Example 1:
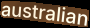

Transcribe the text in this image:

australian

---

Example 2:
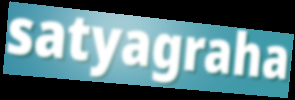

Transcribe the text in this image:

satyagraha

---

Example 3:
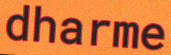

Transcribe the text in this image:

dharme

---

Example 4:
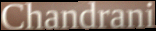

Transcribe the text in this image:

Chandrani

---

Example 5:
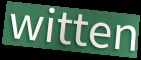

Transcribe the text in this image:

witten